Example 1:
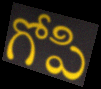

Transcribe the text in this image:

గోపి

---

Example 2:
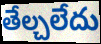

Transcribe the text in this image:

తేల్చలేదు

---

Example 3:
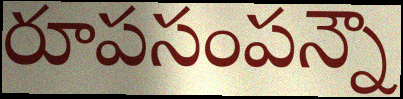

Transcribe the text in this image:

రూపసంపన్నౌ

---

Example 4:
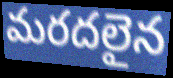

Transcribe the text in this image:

మరదలైన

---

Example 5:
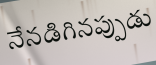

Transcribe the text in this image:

నేనడిగినప్పుడు